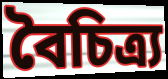
বৈচিত্র্য